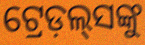
ଟ୍ରେଡ଼ଲ୍‍ସଙ୍କୁ